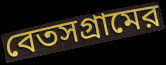
বেতসগ্রামের